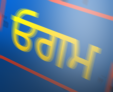
ਓਗਮ